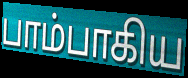
பாம்பாகிய